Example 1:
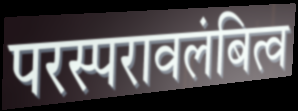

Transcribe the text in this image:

परस्परावलंबित्व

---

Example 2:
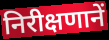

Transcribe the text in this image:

निरीक्षणानें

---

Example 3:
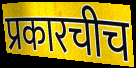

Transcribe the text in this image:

प्रकारचीच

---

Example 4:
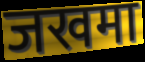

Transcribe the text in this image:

जखमा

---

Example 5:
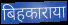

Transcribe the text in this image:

बिहकाराया